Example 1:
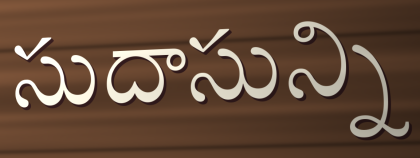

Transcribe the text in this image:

సుదాసున్ని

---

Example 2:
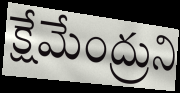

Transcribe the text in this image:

క్షేమేంద్రుని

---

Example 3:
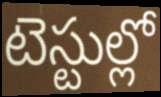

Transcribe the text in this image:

టెస్టుల్లో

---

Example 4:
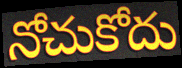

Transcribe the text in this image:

నోచుకోదు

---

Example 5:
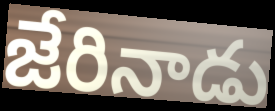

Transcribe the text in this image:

జేరినాడు